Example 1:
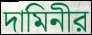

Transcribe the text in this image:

দামিনীর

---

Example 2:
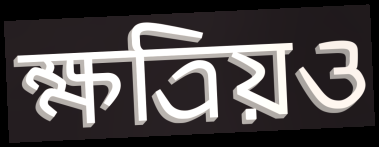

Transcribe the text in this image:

ক্ষত্রিয়ও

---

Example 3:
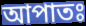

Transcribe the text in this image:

আপাতঃ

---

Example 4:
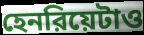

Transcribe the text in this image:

হেনরিয়েটাও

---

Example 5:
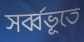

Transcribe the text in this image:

সর্ব্বভূতে